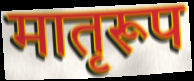
मातृरूप